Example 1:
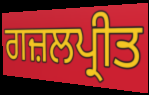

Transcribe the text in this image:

ਗਜ਼ਲਪ੍ਰੀਤ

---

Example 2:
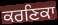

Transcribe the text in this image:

ਕਰਣਿਕਾ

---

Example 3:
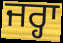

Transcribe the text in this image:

ਜਰ੍ਹਾ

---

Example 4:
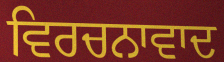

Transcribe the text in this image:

ਵਿਰਚਨਾਵਾਦ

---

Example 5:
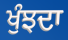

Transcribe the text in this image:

ਖੁੰਝਦਾ